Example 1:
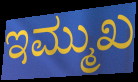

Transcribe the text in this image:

ಇಮ್ಮುಖ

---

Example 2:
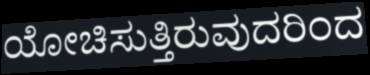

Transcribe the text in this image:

ಯೋಚಿಸುತ್ತಿರುವುದರಿಂದ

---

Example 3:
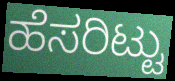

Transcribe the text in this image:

ಹೆಸರಿಟ್ಟು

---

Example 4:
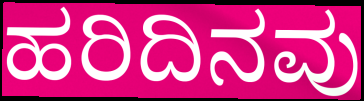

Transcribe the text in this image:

ಹರಿದಿನವು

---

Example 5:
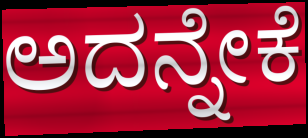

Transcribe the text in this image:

ಅದನ್ನೇಕೆ